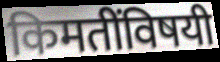
किमतींविषयी